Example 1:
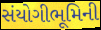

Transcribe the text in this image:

સંયોગીભૂમિની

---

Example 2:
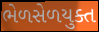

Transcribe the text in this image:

ભેળસેળયુક્ત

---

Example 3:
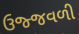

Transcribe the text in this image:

ઉજ્જવળી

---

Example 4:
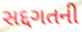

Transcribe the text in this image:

સદ્દગતની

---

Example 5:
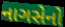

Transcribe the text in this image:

નાગસેનો